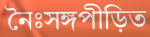
নৈঃসঙ্গপীড়িত